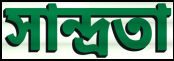
সান্দ্ৰতা